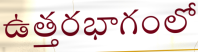
ఉత్తరభాగంలో